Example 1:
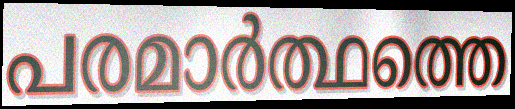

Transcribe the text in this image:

പരമാർത്ഥത്തെ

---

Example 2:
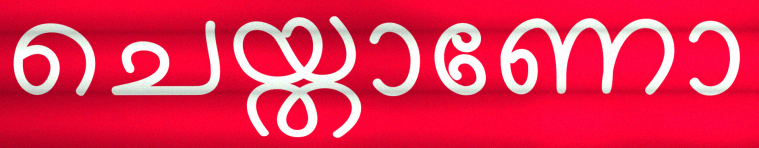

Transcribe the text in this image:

ചെയ്താണോ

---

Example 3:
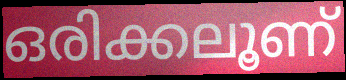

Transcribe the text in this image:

ഒരിക്കലൂണ്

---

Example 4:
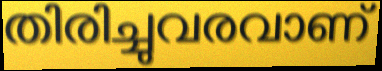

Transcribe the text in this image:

തിരിച്ചുവരവാണ്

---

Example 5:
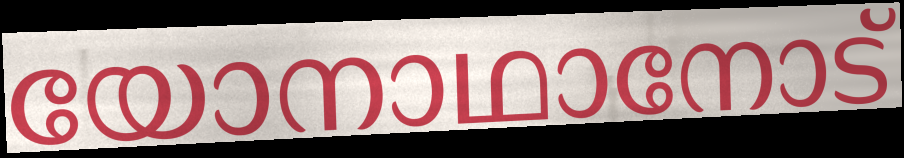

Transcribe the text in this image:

യോനാഥാനോട്